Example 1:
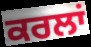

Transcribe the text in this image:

ਕਰਲਾਂ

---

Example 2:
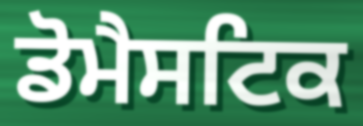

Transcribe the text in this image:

ਡੋਮੈਸਟਿਕ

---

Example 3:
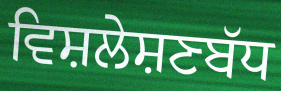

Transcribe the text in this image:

ਵਿਸ਼ਲੇਸ਼ਣਬੱਧ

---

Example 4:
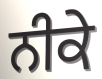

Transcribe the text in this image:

ਨੀਕੇ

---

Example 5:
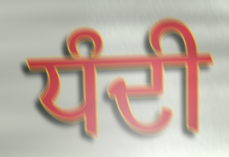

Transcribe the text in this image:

ਧੰਦੀ